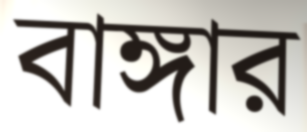
বাঙ্গার